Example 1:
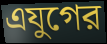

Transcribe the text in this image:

এযুগের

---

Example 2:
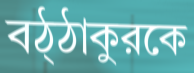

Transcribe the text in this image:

বঠ্ঠাকুরকে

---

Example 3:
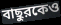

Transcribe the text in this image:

বাছুরকেও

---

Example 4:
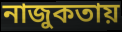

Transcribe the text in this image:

নাজুকতায়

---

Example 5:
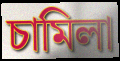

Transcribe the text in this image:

চামিলা